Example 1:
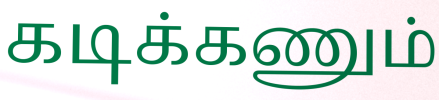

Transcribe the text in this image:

கடிக்கணும்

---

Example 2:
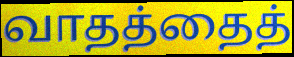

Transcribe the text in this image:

வாதத்தைத்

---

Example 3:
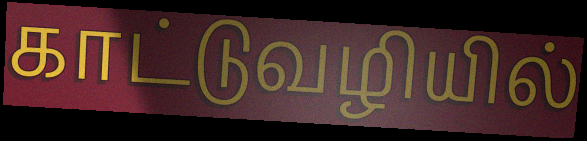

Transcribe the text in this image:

காட்டுவழியில்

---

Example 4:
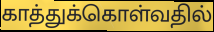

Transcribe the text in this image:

காத்துக்கொள்வதில்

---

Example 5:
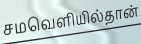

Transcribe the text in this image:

சமவெளியில்தான்